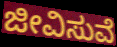
ಜೀವಿಸುವೆ